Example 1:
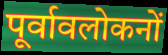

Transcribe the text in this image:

पूर्वावलोकनों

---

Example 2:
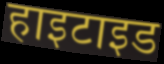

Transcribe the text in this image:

हाइटाइड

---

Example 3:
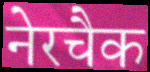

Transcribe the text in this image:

नेरचैक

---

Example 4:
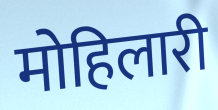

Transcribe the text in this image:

मोहिलारी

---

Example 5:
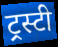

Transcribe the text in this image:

ट्रस्टी